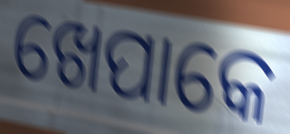
ଖେପାକେ